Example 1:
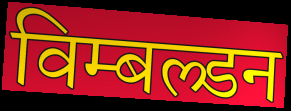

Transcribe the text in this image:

विम्बल्डन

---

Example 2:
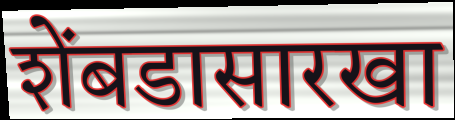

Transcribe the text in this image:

शेंबडासारखा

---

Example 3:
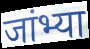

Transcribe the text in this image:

जांभ्या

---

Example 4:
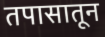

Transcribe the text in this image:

तपासातून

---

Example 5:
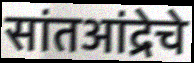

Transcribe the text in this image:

सांतआंद्रेचे